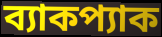
ব্যাকপ্যাক